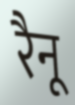
रैनू